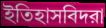
ইতিহাসবিদরা